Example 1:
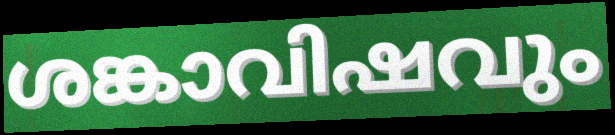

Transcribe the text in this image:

ശങ്കാവിഷവും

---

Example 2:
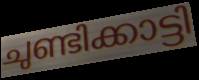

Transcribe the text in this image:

ചുണ്ടിക്കാട്ടി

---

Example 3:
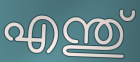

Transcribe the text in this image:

എന്തു്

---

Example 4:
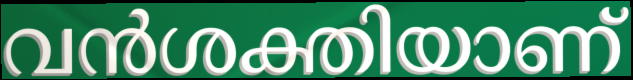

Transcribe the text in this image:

വൻശക്തിയാണ്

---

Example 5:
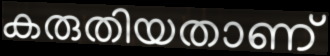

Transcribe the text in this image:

കരുതിയതാണ്